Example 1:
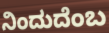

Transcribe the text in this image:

ನಿಂದುದೆಂಬ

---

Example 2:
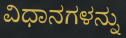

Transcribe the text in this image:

ವಿಧಾನಗಳನ್ನು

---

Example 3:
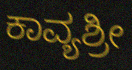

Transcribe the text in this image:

ಕಾವ್ಯಶ್ರೀ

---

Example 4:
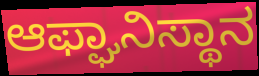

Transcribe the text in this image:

ಆಫ್ಘಾನಿಸ್ಥಾನ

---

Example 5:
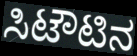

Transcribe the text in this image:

ಸಿಟೌಟಿನ